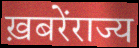
ख़बरेंराज्य